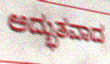
ಅದ್ಭುತವಾದ